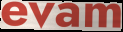
evam